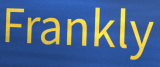
Frankly